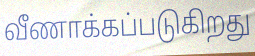
வீணாக்கப்படுகிறது